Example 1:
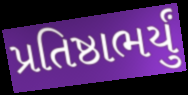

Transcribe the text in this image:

પ્રતિષ્ઠાભર્યું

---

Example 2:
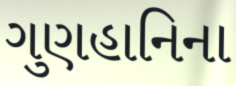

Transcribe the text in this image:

ગુણહાનિના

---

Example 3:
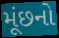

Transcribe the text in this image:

મૂંછનો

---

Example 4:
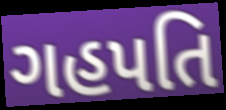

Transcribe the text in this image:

ગહપતિ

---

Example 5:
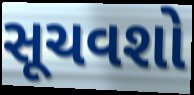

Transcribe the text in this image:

સૂચવશો